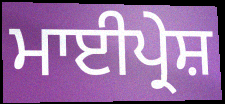
ਮਾਈਪ੍ਰੇਸ਼